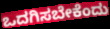
ಒದಗಿಸಬೇಕೆಂದು